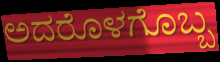
ಅದರೊಳಗೊಬ್ಬ